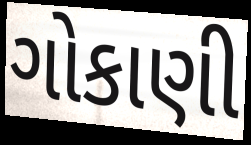
ગોકાણી